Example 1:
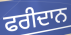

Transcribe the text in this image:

ਫਰੀਦਾਨ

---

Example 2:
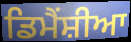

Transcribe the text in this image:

ਡਿਮੈਂਸ਼ੀਆ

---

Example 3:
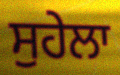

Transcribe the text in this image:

ਸੁਹੇਲਾ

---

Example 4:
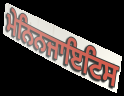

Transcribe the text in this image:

ਮੇਨਿਨਜਾਇਟਿਸ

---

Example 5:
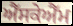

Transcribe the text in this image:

ਐੱਸਕੇਐੱਮ